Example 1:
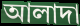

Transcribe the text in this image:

আলাদা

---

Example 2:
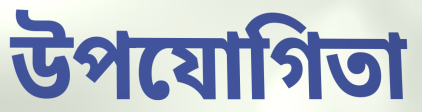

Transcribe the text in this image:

উপযোগিতা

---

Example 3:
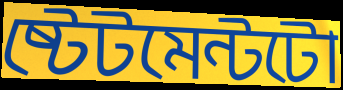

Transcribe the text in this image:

ষ্টেটমেন্টটো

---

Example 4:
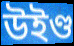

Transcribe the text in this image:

উইণ্ড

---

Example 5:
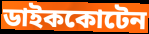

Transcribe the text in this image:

ডাইককোটেন